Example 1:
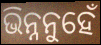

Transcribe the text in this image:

ଭିନ୍ନନୁହେଁ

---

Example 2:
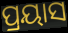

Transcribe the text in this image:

ପ୍ରୟାସ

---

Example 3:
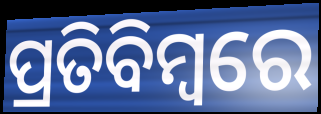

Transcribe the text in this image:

ପ୍ରତିବିମ୍ବରେ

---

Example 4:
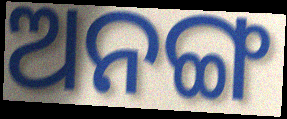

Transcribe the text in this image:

ଅନଙ୍ଗ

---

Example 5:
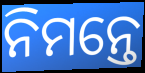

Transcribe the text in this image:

ନିମନ୍ତେ